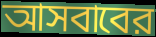
আসবাবের